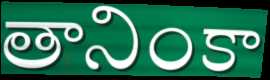
తానింకా